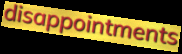
disappointments